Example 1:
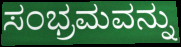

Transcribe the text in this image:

ಸಂಭ್ರಮವನ್ನು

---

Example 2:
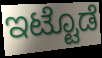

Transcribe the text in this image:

ಇಟ್ಟೊಡೆ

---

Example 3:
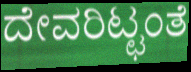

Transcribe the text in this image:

ದೇವರಿಟ್ಟಂತೆ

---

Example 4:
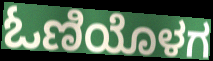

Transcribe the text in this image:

ಓಣಿಯೊಳಗ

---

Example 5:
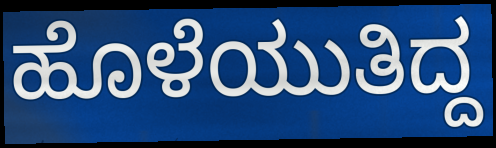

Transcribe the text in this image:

ಹೊಳೆಯುತಿದ್ದ